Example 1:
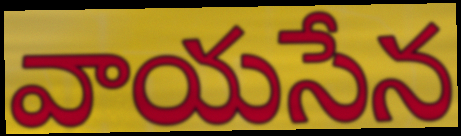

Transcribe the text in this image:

వాయసేన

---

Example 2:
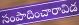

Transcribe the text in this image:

సంపాదించారావిడ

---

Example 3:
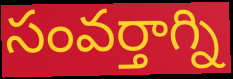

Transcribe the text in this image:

సంవర్తాగ్ని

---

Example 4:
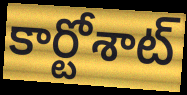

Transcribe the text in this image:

కార్టోశాట్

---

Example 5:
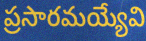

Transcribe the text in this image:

ప్రసారమయ్యేవి